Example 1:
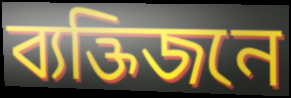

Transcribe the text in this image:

ব্যক্তিজনে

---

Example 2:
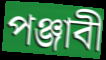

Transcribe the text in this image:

পঞ্জাবী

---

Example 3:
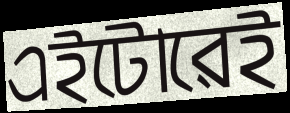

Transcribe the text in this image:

এইটোৱেই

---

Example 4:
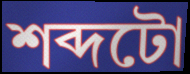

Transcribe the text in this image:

শব্দটো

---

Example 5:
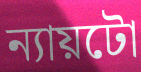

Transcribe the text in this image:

ন্যায়টো